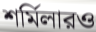
শর্মিলারও